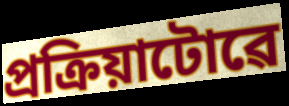
প্ৰক্ৰিয়াটোৱে